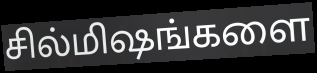
சில்மிஷங்களை